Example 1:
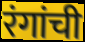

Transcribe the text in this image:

रंगांची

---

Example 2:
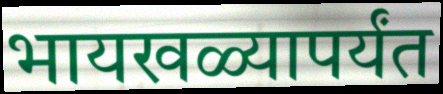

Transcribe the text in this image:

भायखळ्यापर्यंत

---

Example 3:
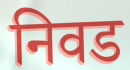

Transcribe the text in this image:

निवड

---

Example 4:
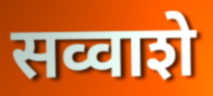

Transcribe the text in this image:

सव्वाशे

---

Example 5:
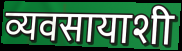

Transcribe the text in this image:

व्यवसायाशी